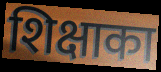
शिक्षाका